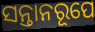
ସନ୍ତାନରୂପେ